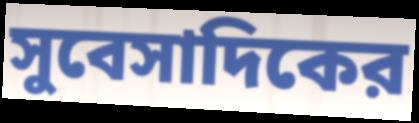
সুবেসাদিকের